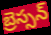
బ్రెస్సన్